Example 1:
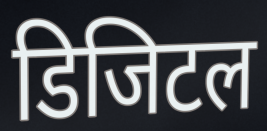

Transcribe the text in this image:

डिजिटल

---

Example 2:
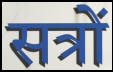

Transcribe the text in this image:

सत्रों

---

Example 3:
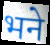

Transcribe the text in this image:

भने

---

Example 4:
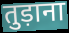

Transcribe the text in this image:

तुड़ाना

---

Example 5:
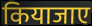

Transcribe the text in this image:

कियाजाए